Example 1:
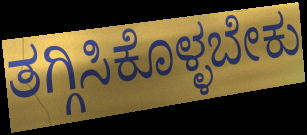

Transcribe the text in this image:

ತಗ್ಗಿಸಿಕೊಳ್ಳಬೇಕು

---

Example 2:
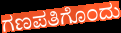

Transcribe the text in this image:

ಗಣಪತಿಗೊಂದು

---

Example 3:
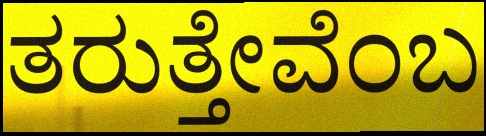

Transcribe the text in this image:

ತರುತ್ತೇವೆಂಬ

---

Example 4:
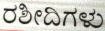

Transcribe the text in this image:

ರಶೀದಿಗಳು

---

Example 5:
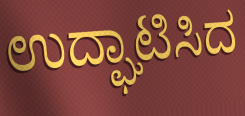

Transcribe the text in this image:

ಉದ್ಘಾಟಿಸಿದ